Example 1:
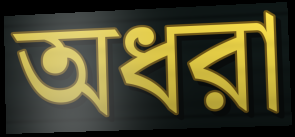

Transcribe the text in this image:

অধরা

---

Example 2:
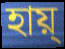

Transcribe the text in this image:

হায়্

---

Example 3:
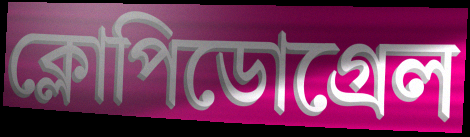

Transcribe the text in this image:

ক্লোপিডোগ্রেল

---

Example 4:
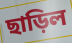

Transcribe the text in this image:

ছাড়িল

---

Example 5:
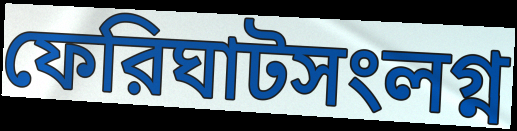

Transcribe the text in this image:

ফেরিঘাটসংলগ্ন